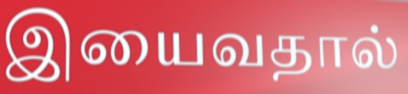
இயைவதால்